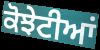
ਕੋਝੇਟੀਆਂ